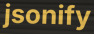
jsonify